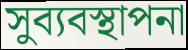
সুব্যবস্থাপনা